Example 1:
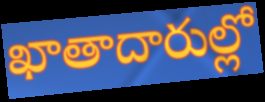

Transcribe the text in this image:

ఖాతాదారుల్లో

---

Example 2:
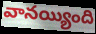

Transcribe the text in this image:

వానయ్యింది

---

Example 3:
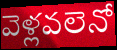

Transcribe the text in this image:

వెళ్లవలెనో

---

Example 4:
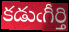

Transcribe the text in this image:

కడుఁగీర్తి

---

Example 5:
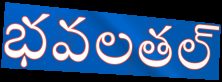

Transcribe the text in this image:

భవలతల్